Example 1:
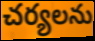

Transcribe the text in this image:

చర్యలను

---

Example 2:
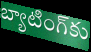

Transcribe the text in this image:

బ్యాటింగ్‌కు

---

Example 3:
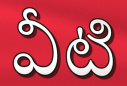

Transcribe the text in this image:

వీటి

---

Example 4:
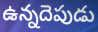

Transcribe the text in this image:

ఉన్నదెపుడు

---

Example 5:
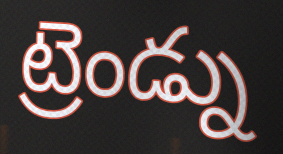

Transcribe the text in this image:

ట్రెండ్ను